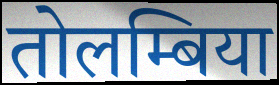
तोलम्बिया